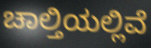
ಚಾಲ್ತಿಯಲ್ಲಿವೆ